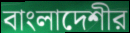
বাংলাদেশীর